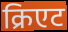
क्रिएट